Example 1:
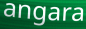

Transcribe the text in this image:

angara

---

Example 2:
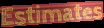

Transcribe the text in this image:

Estimates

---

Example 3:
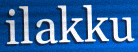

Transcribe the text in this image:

ilakku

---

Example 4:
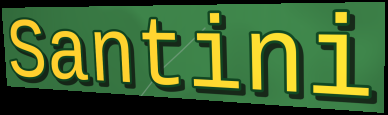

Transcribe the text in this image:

Santini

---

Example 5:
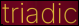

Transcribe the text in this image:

triadic